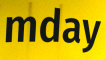
mday